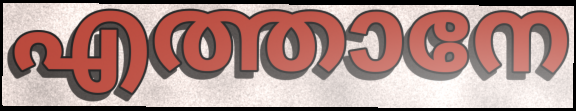
എത്താനേ